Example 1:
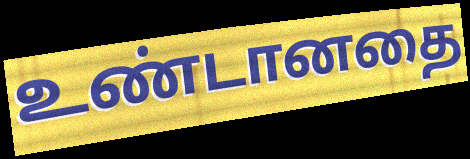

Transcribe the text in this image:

உண்டானதை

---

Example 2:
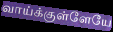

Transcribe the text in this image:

வாய்க்குள்ளேயே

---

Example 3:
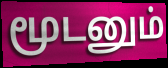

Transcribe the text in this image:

மூடனும்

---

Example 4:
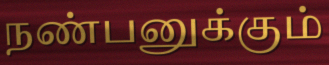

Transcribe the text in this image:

நண்பனுக்கும்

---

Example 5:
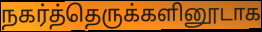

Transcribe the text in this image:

நகர்த்தெருக்களினூடாக